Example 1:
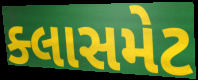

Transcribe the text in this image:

ક્લાસમેટ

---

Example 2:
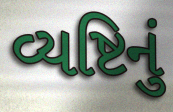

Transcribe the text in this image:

વ્યષ્ટિનું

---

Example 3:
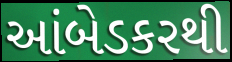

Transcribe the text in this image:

આંબેડકરથી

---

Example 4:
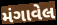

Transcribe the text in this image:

મંગાવેલ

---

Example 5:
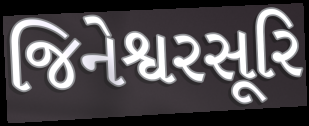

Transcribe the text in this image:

જિનેશ્વરસૂરિ